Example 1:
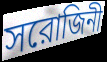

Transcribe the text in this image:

সরোজিনী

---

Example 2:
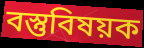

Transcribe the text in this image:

বস্তুবিষয়ক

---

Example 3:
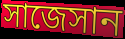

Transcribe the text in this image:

সাজেসান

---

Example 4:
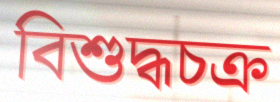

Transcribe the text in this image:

বিশুদ্ধচক্র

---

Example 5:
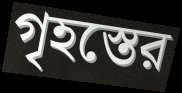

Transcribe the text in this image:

গৃহস্তের